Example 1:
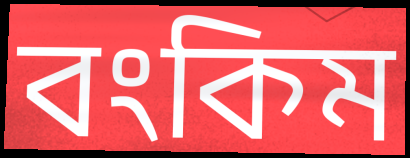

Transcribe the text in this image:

বংকিম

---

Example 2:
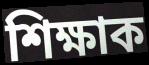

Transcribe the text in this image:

শিক্ষাক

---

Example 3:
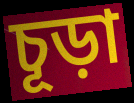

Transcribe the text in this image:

চূড়া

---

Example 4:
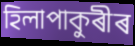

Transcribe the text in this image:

হিলাপাকুৰীৰ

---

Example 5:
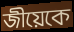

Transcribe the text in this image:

জীয়েকে